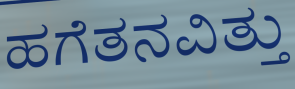
ಹಗೆತನವಿತ್ತು